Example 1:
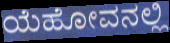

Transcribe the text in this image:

ಯೆಹೋವನಲ್ಲಿ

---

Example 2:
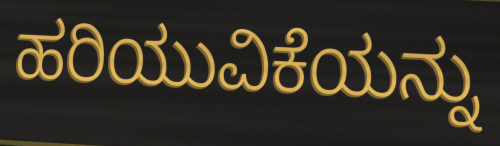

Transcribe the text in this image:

ಹರಿಯುವಿಕೆಯನ್ನು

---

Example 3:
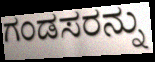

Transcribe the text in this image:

ಗಂಡಸರನ್ನು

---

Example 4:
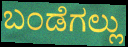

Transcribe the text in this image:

ಬಂಡೆಗಲ್ಲು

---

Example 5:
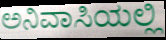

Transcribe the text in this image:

ಅನಿವಾಸಿಯಲ್ಲಿ